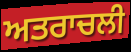
ਅਤਰਾਚਲੀ